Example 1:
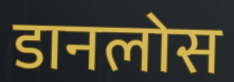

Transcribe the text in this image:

डानलोस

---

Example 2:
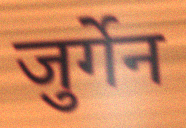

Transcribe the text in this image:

जुर्गेन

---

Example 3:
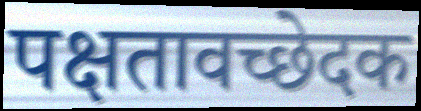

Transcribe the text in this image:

पक्षतावच्छेदक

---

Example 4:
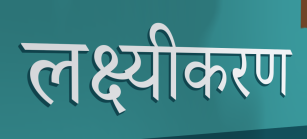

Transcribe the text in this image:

लक्ष्यीकरण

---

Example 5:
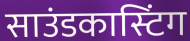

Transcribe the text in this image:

साउंडकास्टिंग